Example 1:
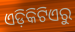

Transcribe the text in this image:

ଏଡ଼ିକିଟିଏରୁ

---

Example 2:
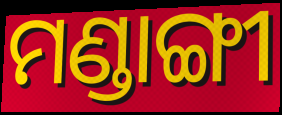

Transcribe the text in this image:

ମଣ୍ଡାଙ୍ଗୀ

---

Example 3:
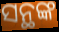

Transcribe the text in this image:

ସନ୍ଥଙ୍କ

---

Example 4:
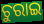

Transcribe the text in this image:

ଚୁରାଇ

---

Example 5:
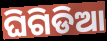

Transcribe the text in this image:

ଘିଗିଡିଆ